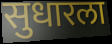
सुधारला